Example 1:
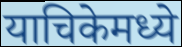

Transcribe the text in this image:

याचिकेमध्ये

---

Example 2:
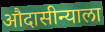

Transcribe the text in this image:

औदासीन्याला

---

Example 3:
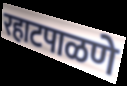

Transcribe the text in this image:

रहाटपाळणे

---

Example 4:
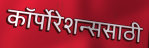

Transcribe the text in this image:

कॉर्पोरेशन्ससाठी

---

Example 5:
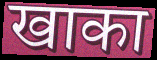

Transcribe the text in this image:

खाका